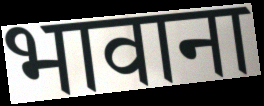
भावाना